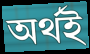
অৰ্থই